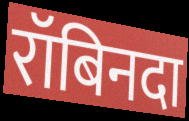
रॉबिनदा